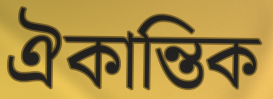
ঐকান্তিক